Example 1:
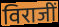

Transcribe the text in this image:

विराजीं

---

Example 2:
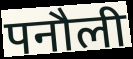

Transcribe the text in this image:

पनौली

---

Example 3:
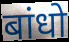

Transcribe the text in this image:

बांधो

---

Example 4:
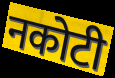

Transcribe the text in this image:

नकोटी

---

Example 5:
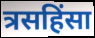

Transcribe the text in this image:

त्रसहिंसा